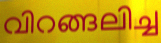
വിറങ്ങലിച്ച